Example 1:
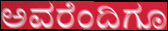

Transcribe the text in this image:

ಅವರೆಂದಿಗೂ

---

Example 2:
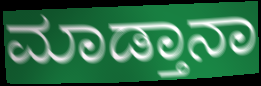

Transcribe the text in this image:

ಮಾಡ್ತಾನಾ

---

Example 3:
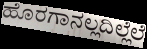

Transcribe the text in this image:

ಹೊರಗಾನಲ್ಲದಿಲ್ಲೆಲೆ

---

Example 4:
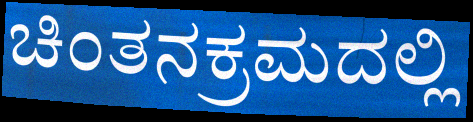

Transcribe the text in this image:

ಚಿಂತನಕ್ರಮದಲ್ಲಿ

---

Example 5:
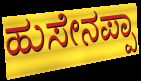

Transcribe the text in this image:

ಹುಸೇನಪ್ಪಾ